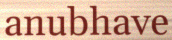
anubhave